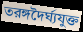
তরঙ্গদৈর্ঘ্যযুক্ত